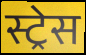
स्ट्रेस